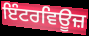
ਇੰਟਰਵਿਊਜ਼